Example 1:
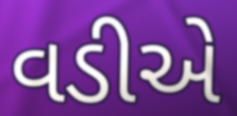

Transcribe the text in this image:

વડીએ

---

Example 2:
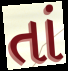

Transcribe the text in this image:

તાં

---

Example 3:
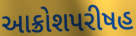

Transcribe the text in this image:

આક્રોશપરીષહ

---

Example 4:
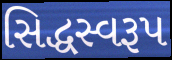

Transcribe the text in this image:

સિદ્ધસ્વરૂપ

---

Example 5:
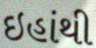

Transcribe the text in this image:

ઇહાંથી